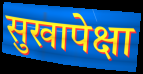
सुखापेक्षा